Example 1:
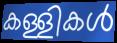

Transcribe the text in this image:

കള്ളികൾ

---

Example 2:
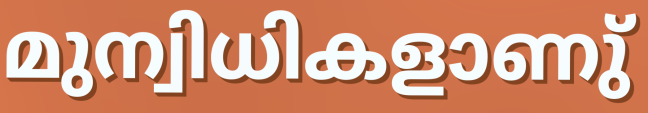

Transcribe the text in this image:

മുന്വിധികളാണു്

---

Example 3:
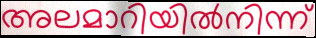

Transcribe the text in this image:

അലമാറിയിൽനിന്ന്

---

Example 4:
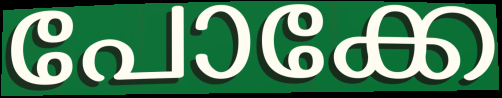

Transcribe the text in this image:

പോക്കേ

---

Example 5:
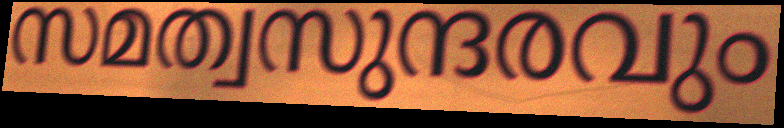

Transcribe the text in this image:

സമത്വസുന്ദരവും